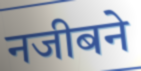
नजीबने